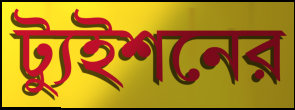
ট্যুইশনের